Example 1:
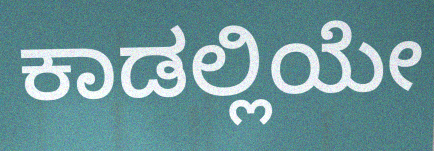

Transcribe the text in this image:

ಕಾಡಲ್ಲಿಯೇ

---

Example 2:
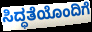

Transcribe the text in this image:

ಸಿದ್ಧತೆಯೊಂದಿಗೆ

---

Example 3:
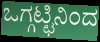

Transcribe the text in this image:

ಒಗ್ಗಟ್ಟಿನಿಂದ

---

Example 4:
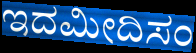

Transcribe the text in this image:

ಇದಮೀದಿಸಂ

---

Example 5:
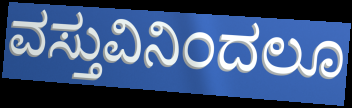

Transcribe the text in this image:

ವಸ್ತುವಿನಿಂದಲೂ